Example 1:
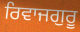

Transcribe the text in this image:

ਰਿਵਾਜਗੁਰੂ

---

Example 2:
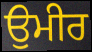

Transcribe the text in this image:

ਉਮੀਰ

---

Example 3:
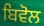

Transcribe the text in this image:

ਬਿਵੋਲ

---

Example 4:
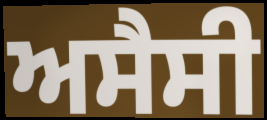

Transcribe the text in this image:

ਅਸੈਸੀ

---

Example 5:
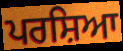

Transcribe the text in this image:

ਪਰਸ਼ਿਆ